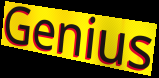
Genius